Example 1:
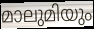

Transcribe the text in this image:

മാലുമിയും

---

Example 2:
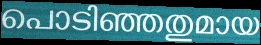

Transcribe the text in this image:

പൊടിഞ്ഞതുമായ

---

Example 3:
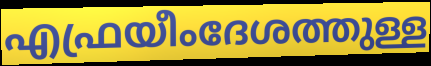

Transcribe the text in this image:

എഫ്രയീംദേശത്തുള്ള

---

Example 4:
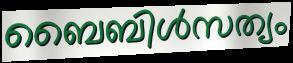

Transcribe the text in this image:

ബൈബിൾസത്യം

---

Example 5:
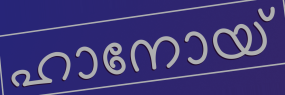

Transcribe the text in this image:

ഹാനോയ്